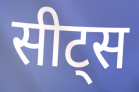
सीट्स